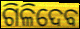
ଗିଳିଦେବ